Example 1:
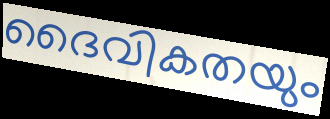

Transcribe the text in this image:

ദൈവികതയും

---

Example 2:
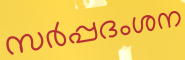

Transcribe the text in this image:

സർപ്പദംശന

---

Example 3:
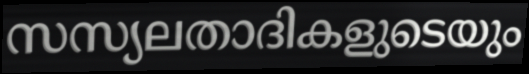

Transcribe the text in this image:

സസ്യലതാദികളുടെയും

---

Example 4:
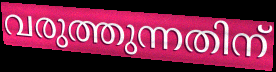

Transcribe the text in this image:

വരുത്തുന്നതിന്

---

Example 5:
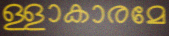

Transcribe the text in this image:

ള്ളാകാരമേ